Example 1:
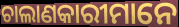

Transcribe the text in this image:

ଚାଲାଣକାରୀମାନେ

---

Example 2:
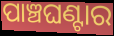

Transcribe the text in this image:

ପାଞ୍ଚଘଣ୍ଟାର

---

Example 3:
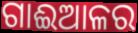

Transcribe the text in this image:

ଗାଈଆଳର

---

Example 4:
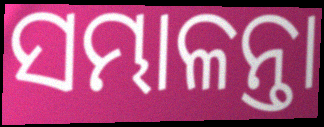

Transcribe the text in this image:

ସମ୍ଭାଳନ୍ତା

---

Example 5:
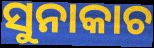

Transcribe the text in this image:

ସୁନାକାଚ